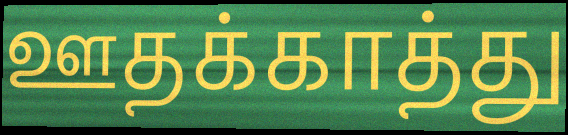
ஊதக்காத்து